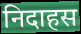
निदाहस